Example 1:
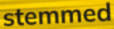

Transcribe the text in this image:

stemmed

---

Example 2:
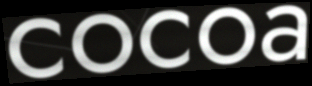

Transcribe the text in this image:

cocoa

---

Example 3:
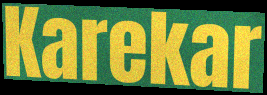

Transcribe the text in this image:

Karekar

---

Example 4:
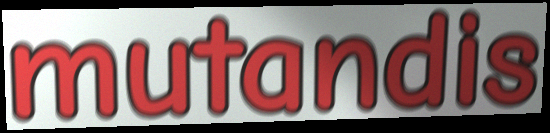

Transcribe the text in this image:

mutandis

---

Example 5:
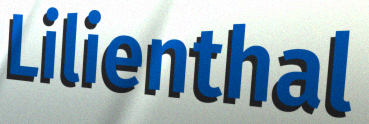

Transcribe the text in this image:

Lilienthal